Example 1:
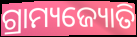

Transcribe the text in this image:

ଗ୍ରାମ୍ୟଜ୍ୟୋତି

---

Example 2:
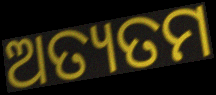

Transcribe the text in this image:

ଅତ୍ୟତମ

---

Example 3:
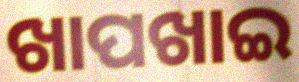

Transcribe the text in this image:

ଖାପଖାଇ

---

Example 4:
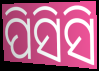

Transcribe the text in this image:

ପିସିସି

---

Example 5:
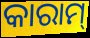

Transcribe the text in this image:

କାରାମ୍